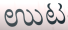
ಉುಟ